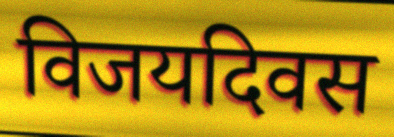
विजयदिवस